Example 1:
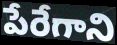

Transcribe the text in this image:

పేరేగాని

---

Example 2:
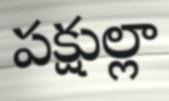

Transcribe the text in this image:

పక్షుల్లా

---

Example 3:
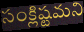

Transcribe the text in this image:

సంక్లిష్టమని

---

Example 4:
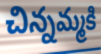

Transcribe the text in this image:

చిన్నమ్మకి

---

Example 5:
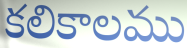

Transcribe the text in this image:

కలికాలము